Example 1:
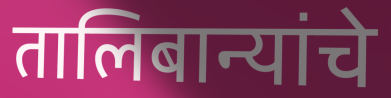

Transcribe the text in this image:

तालिबान्यांचे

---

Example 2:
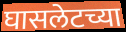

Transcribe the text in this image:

घासलेटच्या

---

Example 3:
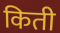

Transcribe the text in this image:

किती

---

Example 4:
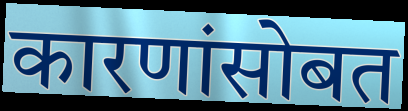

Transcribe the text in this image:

कारणांसोबत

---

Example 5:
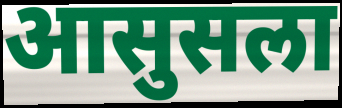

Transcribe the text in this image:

आसुसला